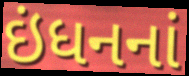
ઇંધનનાં